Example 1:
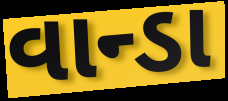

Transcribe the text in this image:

વાન્ડા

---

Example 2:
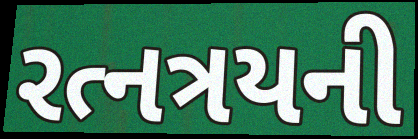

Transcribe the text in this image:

રત્નત્રયની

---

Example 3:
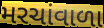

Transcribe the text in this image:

મરચાંવાળા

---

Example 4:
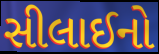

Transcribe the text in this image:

સીલાઈનો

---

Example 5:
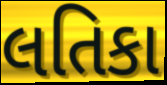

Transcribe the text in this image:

લતિકા